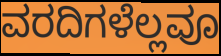
ವರದಿಗಳೆಲ್ಲವೂ